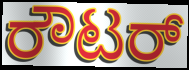
ರೌಟರ್